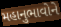
મહાનુભાવોને